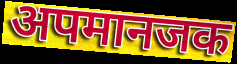
अपमानजक